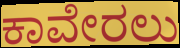
ಕಾವೇರಲು